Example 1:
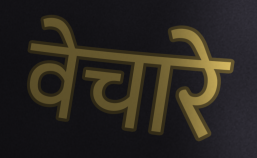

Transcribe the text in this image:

वेचारे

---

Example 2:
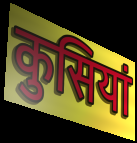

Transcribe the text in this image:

कुसियां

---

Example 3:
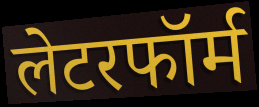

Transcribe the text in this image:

लेटरफॉर्म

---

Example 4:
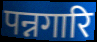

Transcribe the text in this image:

पन्नगारि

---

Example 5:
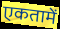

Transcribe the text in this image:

एकतामें